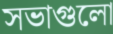
সভাগুলো